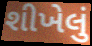
શીખેલું